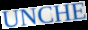
UNCHE